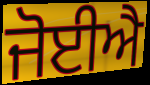
ਜੋਈਐ